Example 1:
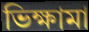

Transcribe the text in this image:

ভিক্ষামা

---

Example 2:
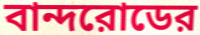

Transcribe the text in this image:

বান্দরোডের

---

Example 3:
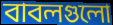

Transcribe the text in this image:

বাবলগুলো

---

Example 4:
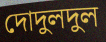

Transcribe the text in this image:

দোদুলদুল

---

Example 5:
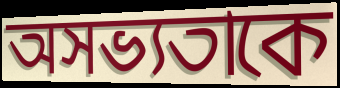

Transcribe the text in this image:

অসভ্যতাকে